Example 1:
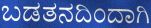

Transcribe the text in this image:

ಬಡತನದಿಂದಾಗಿ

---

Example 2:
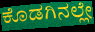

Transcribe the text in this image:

ಕೊಡಗಿನಲ್ಲೇ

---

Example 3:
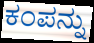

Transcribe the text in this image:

ಕಂಪನ್ನು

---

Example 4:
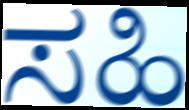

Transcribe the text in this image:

ಸಹಿ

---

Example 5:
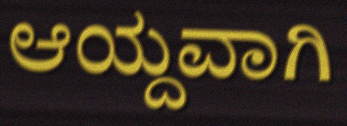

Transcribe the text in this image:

ಆಯ್ದವಾಗಿ